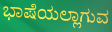
ಭಾಷೆಯಲ್ಲಾಗುವ